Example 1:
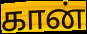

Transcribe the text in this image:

கான்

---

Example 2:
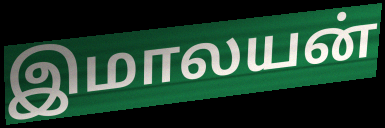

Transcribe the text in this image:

இமாலயன்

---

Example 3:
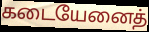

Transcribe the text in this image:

கடையேனைத்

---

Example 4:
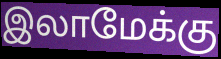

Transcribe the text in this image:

இலாமேக்கு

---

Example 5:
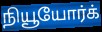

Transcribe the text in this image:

நியூயோர்க்